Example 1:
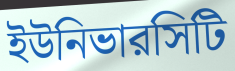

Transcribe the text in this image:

ইউনিভারসিটি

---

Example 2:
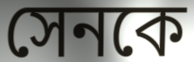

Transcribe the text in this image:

সেনকে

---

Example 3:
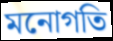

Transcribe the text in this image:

মনোগতি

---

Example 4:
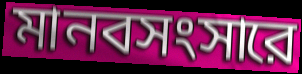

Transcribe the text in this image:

মানবসংসারে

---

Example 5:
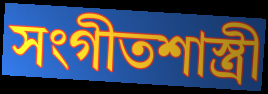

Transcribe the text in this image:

সংগীতশাস্ত্রী